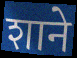
शाने